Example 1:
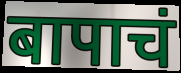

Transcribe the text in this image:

बापाचं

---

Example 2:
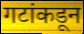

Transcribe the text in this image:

गटांकडून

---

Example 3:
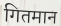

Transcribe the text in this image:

गितमान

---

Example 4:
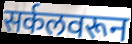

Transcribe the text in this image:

सर्कलवरून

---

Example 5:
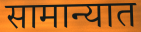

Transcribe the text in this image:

सामान्यात